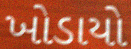
ખોડાયો